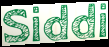
Siddi